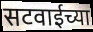
सटवाईच्या